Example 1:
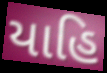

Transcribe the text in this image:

યાહિ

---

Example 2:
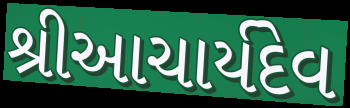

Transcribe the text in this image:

શ્રીઆચાર્યદેવ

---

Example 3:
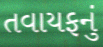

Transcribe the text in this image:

તવાયફનું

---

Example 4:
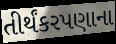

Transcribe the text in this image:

તીર્થંકરપણાના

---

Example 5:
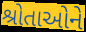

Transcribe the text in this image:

શ્રોતાઓને